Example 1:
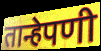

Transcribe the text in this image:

तान्हेपणी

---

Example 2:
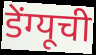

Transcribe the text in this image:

डेंग्यूची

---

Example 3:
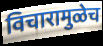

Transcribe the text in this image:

विचारामुळेच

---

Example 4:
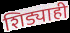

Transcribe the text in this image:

शिड्याही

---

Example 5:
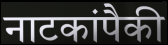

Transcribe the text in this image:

नाटकांपैकी